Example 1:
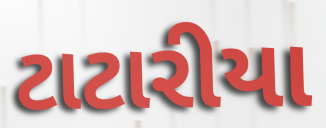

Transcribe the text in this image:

ટાટારીયા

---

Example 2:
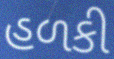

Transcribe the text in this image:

હળકી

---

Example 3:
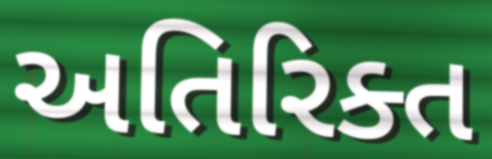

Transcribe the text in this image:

અતિરિક્ત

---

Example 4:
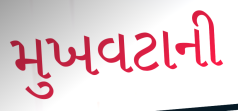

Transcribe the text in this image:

મુખવટાની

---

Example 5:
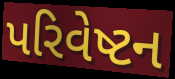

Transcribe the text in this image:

પરિવેષ્ટન